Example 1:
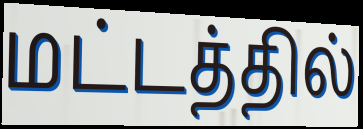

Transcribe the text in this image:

மட்டத்தில்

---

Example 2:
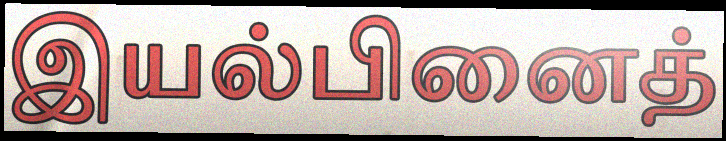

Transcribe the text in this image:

இயல்பினைத்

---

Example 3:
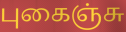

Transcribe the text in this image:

புகைஞ்சு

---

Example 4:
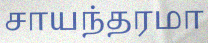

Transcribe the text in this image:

சாயந்தரமா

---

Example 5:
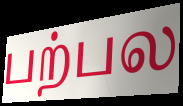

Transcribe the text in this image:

பற்பல